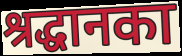
श्रद्धानका